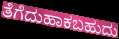
ತೆಗೆದುಹಾಕಬಹುದು